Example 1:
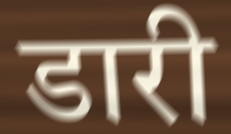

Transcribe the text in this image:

डारी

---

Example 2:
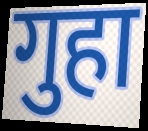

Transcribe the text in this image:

गुहा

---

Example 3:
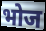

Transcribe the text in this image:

भोज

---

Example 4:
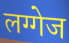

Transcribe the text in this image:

लग्गेज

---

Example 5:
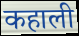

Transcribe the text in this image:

कहाली